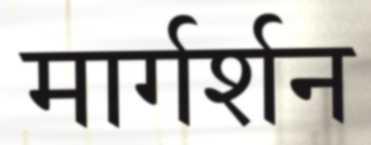
मार्गर्शन